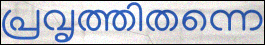
പ്രവൃത്തിതന്നെ